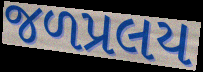
જળપ્રલય